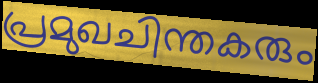
പ്രമുഖചിന്തകരും